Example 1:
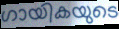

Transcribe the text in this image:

ഗായികയുടെ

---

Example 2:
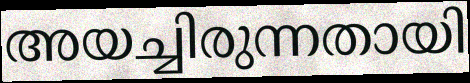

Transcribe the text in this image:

അയച്ചിരുന്നതായി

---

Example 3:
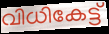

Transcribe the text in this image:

വിധികേട്ട്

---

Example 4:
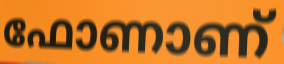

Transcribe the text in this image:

ഫോണാണ്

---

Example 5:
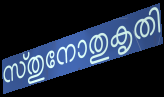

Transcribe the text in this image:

സ്തുനോതുകൃതി